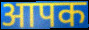
आपक